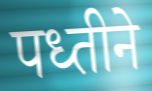
पध्तीने